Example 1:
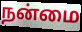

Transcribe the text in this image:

நன்மை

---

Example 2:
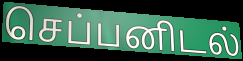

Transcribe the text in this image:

செப்பனிடல்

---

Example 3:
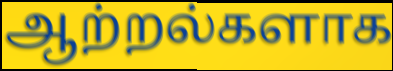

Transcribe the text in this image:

ஆற்றல்களாக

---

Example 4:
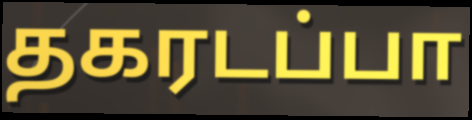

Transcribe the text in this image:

தகரடப்பா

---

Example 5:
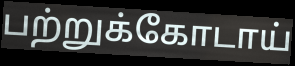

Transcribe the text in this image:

பற்றுக்கோடாய்